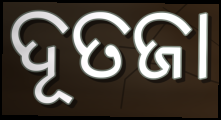
ଦୂତଜା